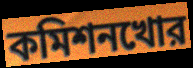
কমিশনখোর